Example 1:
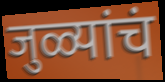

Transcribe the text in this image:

जुळ्यांचं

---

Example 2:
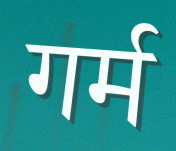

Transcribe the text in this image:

गर्म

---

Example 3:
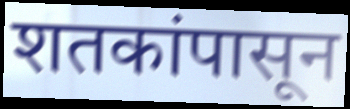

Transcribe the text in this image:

शतकांपासून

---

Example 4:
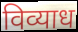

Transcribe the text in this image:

विव्याध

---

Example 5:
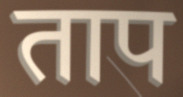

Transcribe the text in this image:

ताप